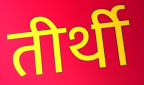
तीर्थी